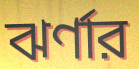
ঝর্ণার